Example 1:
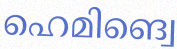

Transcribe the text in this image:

ഹെമിങ്വെ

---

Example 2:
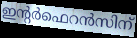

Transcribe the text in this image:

ഇന്റർഫെറൻസിന്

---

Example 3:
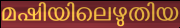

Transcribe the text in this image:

മഷിയിലെഴുതിയ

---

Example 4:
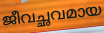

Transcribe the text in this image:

ജീവച്ഛവമായ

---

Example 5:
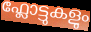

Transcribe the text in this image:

ഫ്ലോട്ടുകളും